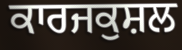
ਕਾਰਜਕੁਸ਼ਲ